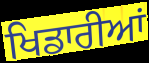
ਖਿਡਾਰੀਆਂ